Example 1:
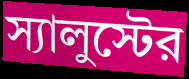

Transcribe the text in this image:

স্যালুস্টের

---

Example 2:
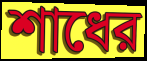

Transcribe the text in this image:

শাধের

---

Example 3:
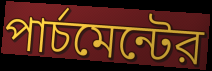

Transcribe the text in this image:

পার্চমেন্টের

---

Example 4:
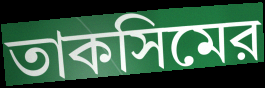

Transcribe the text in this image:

তাকসিমের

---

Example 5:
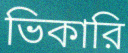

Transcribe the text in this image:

ভিকারি